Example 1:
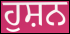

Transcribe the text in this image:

ਹੁਸ਼ਨ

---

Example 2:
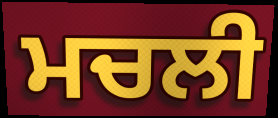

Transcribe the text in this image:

ਮਚਲੀ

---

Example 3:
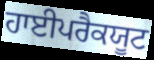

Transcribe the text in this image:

ਹਾਈਪਰੈਕਯੂਟ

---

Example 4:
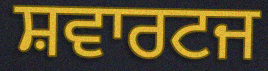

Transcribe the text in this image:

ਸ਼ਵਾਰਟਜ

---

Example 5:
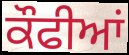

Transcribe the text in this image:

ਕੌਫੀਆਂ